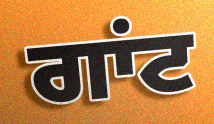
ਗਾਂਟ